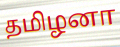
தமிழனா